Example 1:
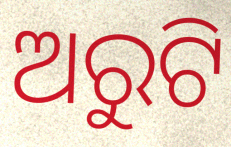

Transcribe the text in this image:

ଅରୁଟି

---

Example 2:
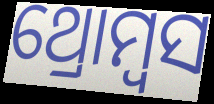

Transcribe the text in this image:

ଥ୍ରୋମ୍ବସ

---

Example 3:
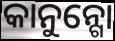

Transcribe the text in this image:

କାନୁନ୍ଗୋ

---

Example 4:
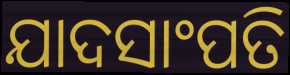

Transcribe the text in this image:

ଯାଦସାଂପତି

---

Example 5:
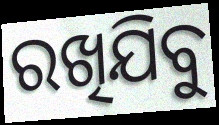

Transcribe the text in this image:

ରଖିଯିବୁ